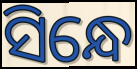
ସିନ୍ଧେ